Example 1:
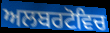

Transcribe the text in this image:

ਅਲਬਰਟੋਵਿਚ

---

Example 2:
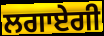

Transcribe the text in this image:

ਲਗਾਏਗੀ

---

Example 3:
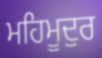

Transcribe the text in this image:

ਮਹਿਮੂਦੁਰ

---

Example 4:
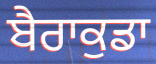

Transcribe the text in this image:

ਬੈਰਾਕੁਡਾ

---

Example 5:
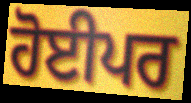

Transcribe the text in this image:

ਹੋਈਪਰ